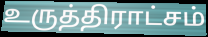
உருத்திராட்சம்